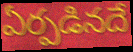
ఏర్పడినదే